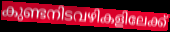
കുണ്ടനിടവഴികളിലേക്ക്